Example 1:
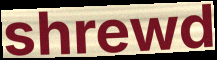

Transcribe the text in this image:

shrewd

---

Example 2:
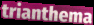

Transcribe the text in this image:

trianthema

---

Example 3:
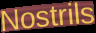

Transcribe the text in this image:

Nostrils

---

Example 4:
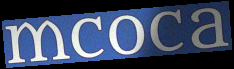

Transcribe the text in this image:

mcoca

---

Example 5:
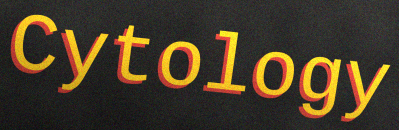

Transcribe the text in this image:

Cytology